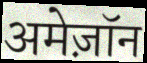
अमेज़ॉन